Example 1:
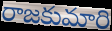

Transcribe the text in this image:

రాజకుమారి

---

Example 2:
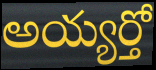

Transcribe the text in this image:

అయ్యర్తో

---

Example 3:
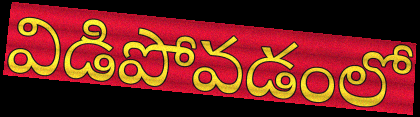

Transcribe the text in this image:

విడిపోవడంలో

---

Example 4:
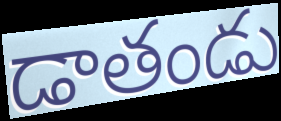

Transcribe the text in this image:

డాతండు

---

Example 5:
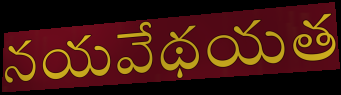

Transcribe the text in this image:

నయవేథయత